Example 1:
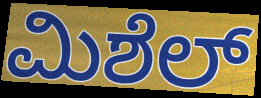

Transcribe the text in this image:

ಮಿಶೆಲ್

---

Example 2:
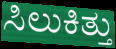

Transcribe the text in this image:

ಸಿಲುಕಿತ್ತು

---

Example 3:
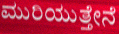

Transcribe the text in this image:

ಮುರಿಯುತ್ತೇನೆ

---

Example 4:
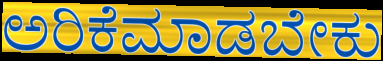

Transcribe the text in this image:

ಅರಿಕೆಮಾಡಬೇಕು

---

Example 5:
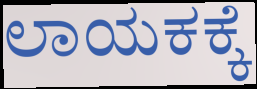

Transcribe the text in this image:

ಲಾಯಕಕ್ಕೆ